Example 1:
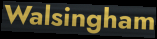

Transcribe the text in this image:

Walsingham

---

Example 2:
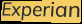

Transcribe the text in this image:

Experian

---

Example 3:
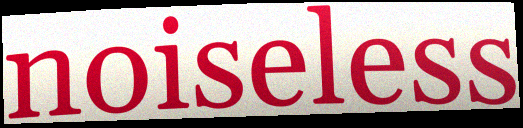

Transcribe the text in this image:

noiseless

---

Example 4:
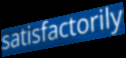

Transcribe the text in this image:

satisfactorily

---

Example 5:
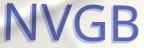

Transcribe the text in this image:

NVGB